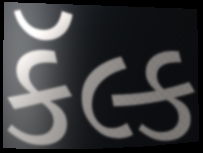
કૅલ્ક